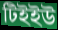
টিইইউ